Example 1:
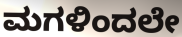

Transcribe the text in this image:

ಮಗಳಿಂದಲೇ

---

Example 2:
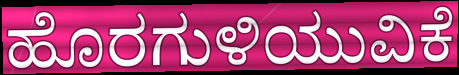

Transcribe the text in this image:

ಹೊರಗುಳಿಯುವಿಕೆ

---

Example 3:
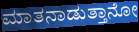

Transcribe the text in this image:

ಮಾತನಾಡುತ್ತಾನೋ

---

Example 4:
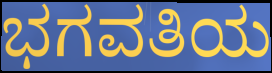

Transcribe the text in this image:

ಭಗವತಿಯ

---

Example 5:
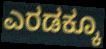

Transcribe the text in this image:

ಎರಡಕ್ಕೂ